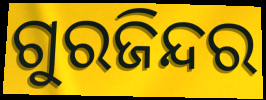
ଗୁରଜିନ୍ଦର